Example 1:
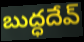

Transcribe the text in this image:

బుద్ధదేవ్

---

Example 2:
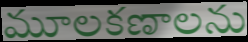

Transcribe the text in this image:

మూలకణాలను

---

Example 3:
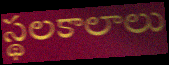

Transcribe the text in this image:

స్థలకాలాలు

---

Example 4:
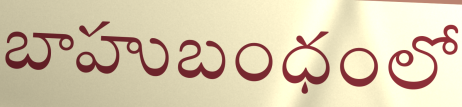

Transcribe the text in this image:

బాహుబంధంలో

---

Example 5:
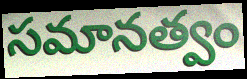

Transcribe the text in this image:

సమానత్వం